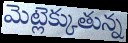
మెట్లెక్కుతున్న